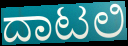
ದಾಟಲಿ